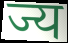
ज्य